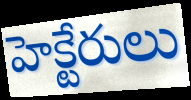
హెక్టేరులు